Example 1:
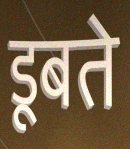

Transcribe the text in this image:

डूबते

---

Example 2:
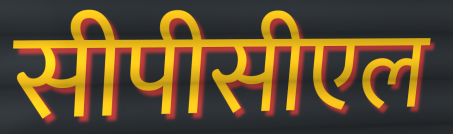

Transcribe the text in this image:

सीपीसीएल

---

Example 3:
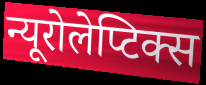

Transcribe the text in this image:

न्यूरोलेप्टिक्स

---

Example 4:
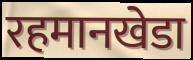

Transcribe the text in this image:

रहमानखेडा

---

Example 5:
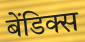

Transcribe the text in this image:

बेंडिक्स